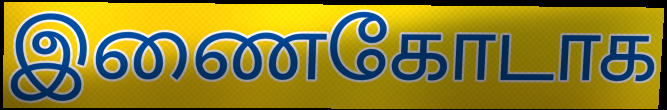
இணைகோடாக